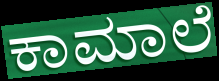
ಕಾಮಾಲೆ